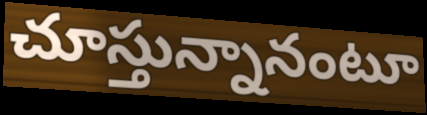
చూస్తున్నానంటూ